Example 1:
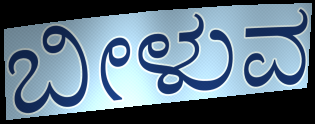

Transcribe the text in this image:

ಬೀಳುವ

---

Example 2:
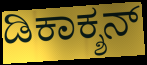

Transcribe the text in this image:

ಡಿಕಾಕ್ಶನ್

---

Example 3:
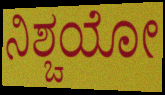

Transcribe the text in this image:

ನಿಶ್ಚಯೋ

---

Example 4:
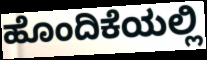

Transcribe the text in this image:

ಹೊಂದಿಕೆಯಲ್ಲಿ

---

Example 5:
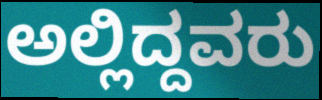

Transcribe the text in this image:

ಅಲ್ಲಿದ್ದವರು